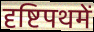
दृष्टिपथमें